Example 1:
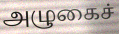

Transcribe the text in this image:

அழுகைச்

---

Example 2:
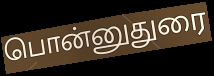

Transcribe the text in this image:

பொன்னுதுரை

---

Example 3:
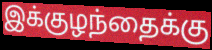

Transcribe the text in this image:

இக்குழந்தைக்கு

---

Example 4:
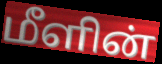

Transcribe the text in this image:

மீளின்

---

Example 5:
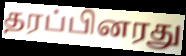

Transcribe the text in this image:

தரப்பினரது